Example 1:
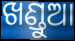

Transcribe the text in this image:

ଖଣ୍ଡୁଆ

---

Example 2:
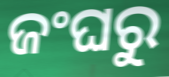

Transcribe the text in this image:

ଜଂଘରୁ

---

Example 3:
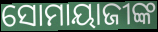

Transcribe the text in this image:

ସୋମାୟାଜୀଙ୍କ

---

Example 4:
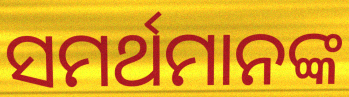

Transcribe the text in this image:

ସମର୍ଥମାନଙ୍କ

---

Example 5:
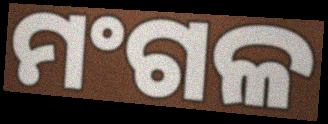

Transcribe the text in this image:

ମଂଗଳ